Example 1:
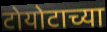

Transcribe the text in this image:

टोयोटाच्या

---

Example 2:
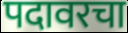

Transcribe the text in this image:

पदावरचा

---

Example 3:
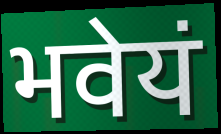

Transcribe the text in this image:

भवेयं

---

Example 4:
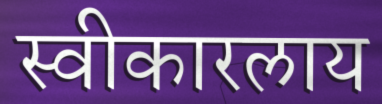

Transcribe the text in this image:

स्वीकारलाय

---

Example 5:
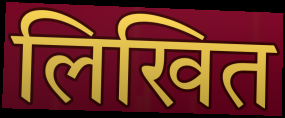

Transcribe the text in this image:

लिखित